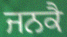
ਜਨਕੈ